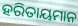
ହରିତାୟମାନ